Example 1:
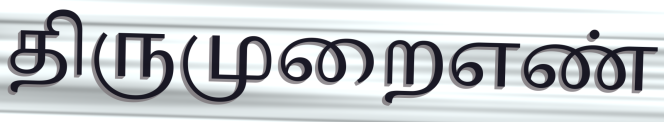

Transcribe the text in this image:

திருமுறைஎண்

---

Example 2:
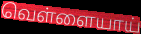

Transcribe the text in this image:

வெள்ளையாய்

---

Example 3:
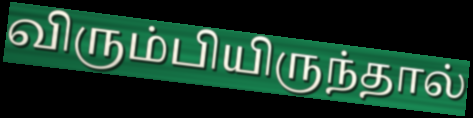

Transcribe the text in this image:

விரும்பியிருந்தால்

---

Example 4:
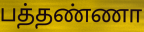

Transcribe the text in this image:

பத்தண்ணா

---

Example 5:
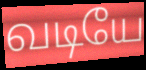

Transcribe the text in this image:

வடியே